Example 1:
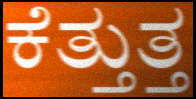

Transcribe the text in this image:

ಕೆತ್ತುತ್ತ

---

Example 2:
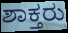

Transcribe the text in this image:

ಶಾಕ್ತರು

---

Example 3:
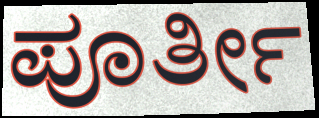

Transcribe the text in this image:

ಪೂರ್ತೀ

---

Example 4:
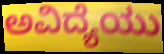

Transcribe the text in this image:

ಅವಿದ್ಯೆಯು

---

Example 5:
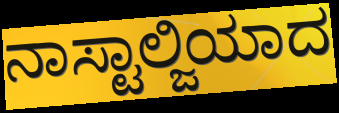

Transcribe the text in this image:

ನಾಸ್ಟಾಲ್ಜಿಯಾದ